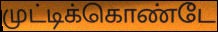
முட்டிக்கொண்டே